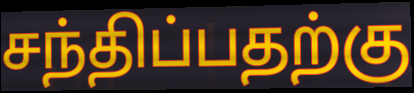
சந்திப்பதற்கு